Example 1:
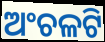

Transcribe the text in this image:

ଅଂଚଳଟି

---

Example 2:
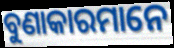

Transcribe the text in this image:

ବୁଣାକାରମାନେ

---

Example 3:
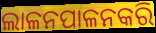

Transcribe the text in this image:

ଲାଳନପାଳନକରି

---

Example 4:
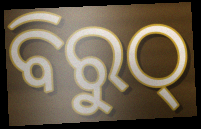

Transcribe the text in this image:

ବିରୁଠ୍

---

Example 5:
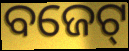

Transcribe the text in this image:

ବଜେଟ୍